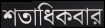
শতাধিকবার